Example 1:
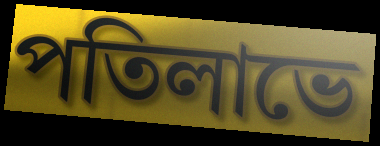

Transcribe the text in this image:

পতিলাভে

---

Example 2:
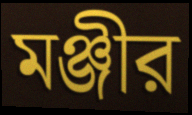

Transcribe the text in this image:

মঞ্জীর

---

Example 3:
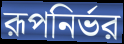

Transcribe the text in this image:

রূপনির্ভর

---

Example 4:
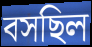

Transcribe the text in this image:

বসছিল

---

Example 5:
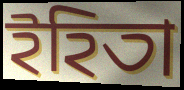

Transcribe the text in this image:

ইহিতা